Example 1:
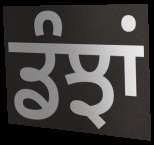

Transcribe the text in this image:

ਡੰਝਾਂ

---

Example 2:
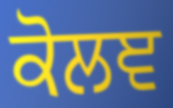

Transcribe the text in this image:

ਕੋਲਞ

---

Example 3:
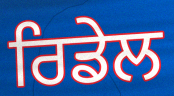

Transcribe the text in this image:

ਰਿਡੇਲ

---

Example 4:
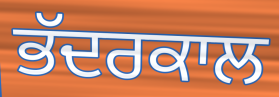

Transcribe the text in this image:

ਭੱਦਰਕਾਲ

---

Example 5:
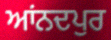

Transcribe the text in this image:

ਆਂਨਦਪੁਰ